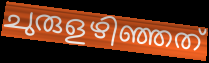
ചുരുളഴിഞ്ഞത്